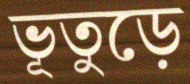
ভূতুড়ে